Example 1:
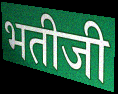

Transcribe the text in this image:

भतीजी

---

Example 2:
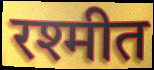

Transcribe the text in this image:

रश्मीत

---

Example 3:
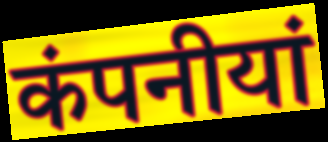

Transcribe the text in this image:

कंपनीयां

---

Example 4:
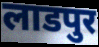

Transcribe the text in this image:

लाडपुर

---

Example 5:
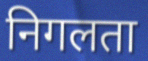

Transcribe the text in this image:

निगलता